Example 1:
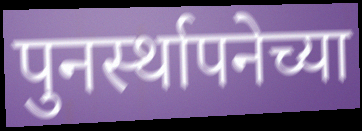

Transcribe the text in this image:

पुनर्स्थापनेच्या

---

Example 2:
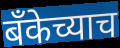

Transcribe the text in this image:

बँकेच्याच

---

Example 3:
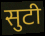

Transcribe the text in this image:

सुटी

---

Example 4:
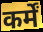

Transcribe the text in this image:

कर्में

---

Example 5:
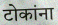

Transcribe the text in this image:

टोकांना